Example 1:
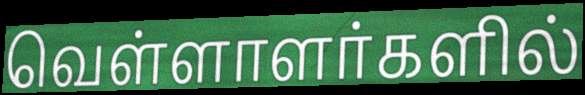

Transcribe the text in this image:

வெள்ளாளர்களில்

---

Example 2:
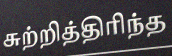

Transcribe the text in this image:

சுற்றித்திரிந்த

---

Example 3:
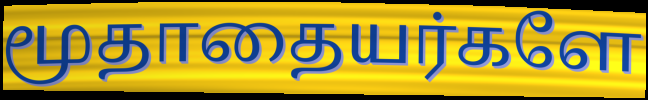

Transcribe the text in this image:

மூதாதையர்களே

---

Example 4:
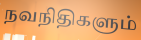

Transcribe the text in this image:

நவநிதிகளும்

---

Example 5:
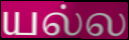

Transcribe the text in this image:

யல்ல